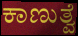
ಕಾಣುತ್ವೆ